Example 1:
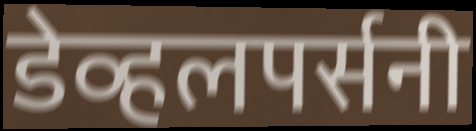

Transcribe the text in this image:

डेव्हलपर्सनी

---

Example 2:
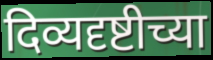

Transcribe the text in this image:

दिव्यदृष्टीच्या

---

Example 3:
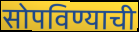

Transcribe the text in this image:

सोपविण्याची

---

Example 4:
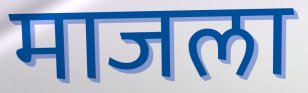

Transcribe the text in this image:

माजला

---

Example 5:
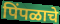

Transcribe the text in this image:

पिंपळाचे